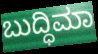
ಬುದ್ಧಿಮಾ